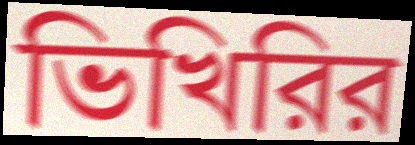
ভিখিরির